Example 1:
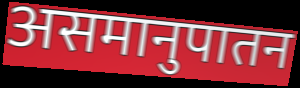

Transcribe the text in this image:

असमानुपातन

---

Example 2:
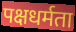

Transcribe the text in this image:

पक्षधर्मता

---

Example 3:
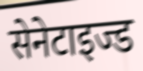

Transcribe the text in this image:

सेनेटाइज्ड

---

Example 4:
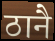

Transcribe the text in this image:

ठानै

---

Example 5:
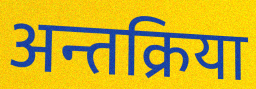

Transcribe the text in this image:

अन्तक्रिया